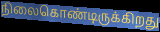
நிலைகொண்டிருக்கிறது